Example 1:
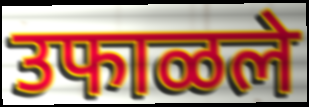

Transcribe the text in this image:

उफाळले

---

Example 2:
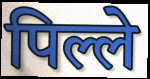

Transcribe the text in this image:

पिल्ले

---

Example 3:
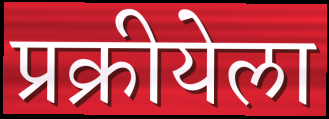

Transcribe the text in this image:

प्रक्रीयेला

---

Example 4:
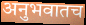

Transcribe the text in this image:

अनुभवातच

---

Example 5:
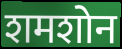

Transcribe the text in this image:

शमशोन